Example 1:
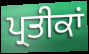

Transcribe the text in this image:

ਪ੍ਰਤੀਕਾਂ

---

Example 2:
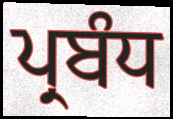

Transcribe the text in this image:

ਪ੍ਰਬੰਧ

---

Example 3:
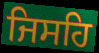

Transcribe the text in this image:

ਜਿਸਹਿ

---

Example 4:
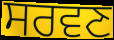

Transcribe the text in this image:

ਸਰਵਣ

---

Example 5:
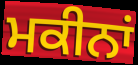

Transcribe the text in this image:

ਮਕੀਨਾਂ